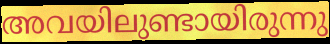
അവയിലുണ്ടായിരുന്നു